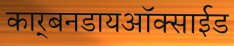
कार्बनडायऑक्साईड